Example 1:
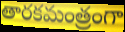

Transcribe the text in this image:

తారకమంత్రంగా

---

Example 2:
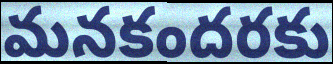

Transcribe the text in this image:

మనకందరకు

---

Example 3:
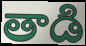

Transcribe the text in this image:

తాడి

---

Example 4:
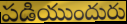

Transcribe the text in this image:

పడియుందురు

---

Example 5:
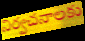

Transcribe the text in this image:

నిర్వచనాలకు